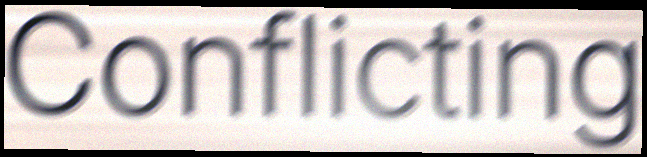
Conflicting